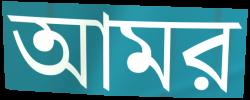
আমর